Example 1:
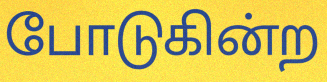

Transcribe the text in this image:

போடுகின்ற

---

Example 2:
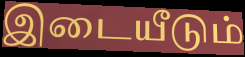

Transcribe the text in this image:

இடையீடும்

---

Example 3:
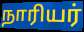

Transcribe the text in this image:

நாரியர்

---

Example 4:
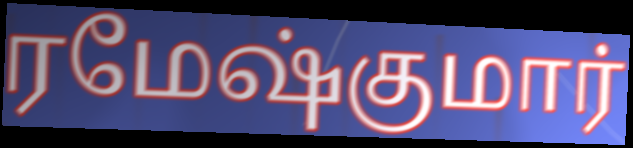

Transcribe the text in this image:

ரமேஷ்குமார்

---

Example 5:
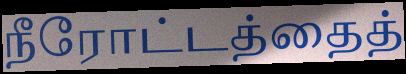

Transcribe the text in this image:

நீரோட்டத்தைத்